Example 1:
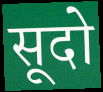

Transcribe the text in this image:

सूदो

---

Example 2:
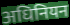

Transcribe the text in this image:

अधिनियन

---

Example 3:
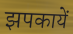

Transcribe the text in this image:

झपकायें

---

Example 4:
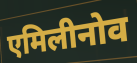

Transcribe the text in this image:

एमिलीनोव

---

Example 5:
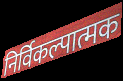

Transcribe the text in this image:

निर्विकल्पात्मक